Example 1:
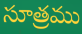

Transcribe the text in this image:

సూత్రము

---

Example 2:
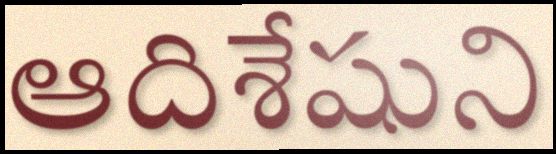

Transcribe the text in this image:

ఆదిశేషుని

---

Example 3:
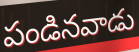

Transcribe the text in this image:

పండినవాడు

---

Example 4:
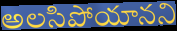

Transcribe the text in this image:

అలసిపోయానని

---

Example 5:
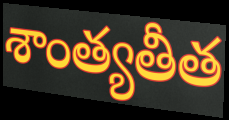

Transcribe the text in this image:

శాంత్యతీత